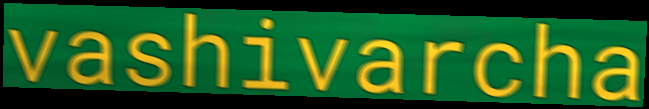
vashivarcha